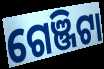
ଗେଞ୍ଜିଟା